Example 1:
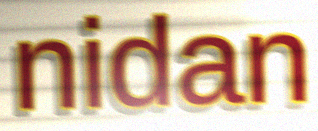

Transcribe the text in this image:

nidan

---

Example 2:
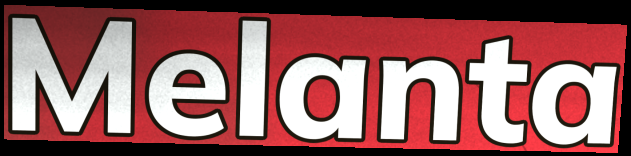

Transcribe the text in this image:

Melanta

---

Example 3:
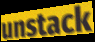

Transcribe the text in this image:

unstack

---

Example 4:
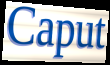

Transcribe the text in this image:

Caput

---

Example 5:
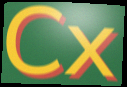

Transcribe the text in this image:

Cx